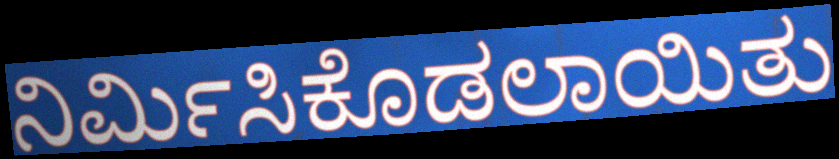
ನಿರ್ಮಿಸಿಕೊಡಲಾಯಿತು